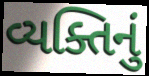
વ્યક્તિનું